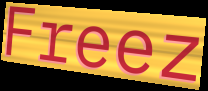
Freez